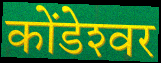
कोंडेश्वर